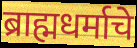
ब्राह्मधर्माचे